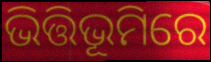
ଭିତ୍ତିଭୂମିରେ